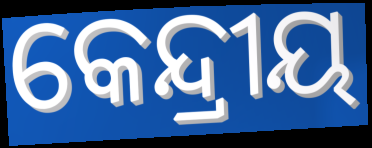
କେନ୍ଦ୍ରୀୟ